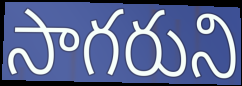
సాగరుని